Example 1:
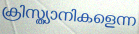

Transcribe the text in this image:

ക്രിസ്ത്യാനികളെന്ന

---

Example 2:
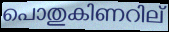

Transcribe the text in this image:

പൊതുകിണറില്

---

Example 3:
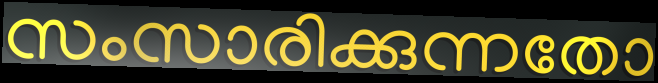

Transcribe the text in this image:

സംസാരിക്കുന്നതോ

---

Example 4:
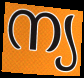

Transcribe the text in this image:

ന്യ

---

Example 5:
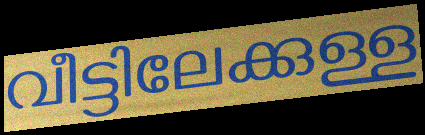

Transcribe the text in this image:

വീട്ടിലേക്കുള്ള